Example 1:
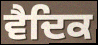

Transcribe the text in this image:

ਵੈਦਿਕ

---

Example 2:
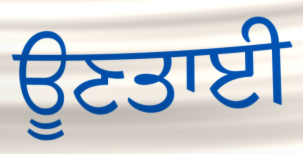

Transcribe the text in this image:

ਊਣਤਾਈ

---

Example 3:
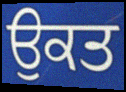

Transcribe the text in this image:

ਉਕਤ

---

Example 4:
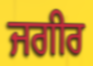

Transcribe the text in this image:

ਜਗੀਰ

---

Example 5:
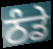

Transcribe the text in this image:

ਠੰਡੇ